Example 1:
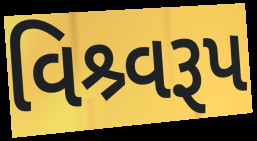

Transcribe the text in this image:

વિશ્ર્વરૂપ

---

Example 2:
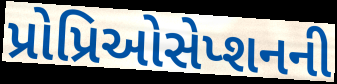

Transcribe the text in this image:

પ્રોપ્રિઓસેપ્શનની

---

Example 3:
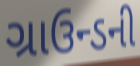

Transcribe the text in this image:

ગ્રાઉન્ડની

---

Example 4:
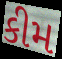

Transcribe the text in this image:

કીમ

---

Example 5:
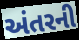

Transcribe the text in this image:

અંતરની